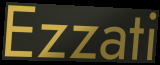
Ezzati